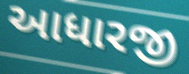
આધારજી